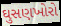
ઘુસણખોરો